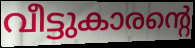
വീട്ടുകാരന്റെ